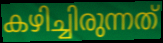
കഴിച്ചിരുന്നത്